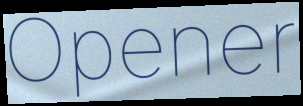
Opener